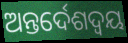
ଅନ୍ତର୍ଦେଶଦ୍ଵୟ